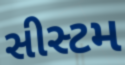
સીસ્ટમ